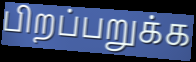
பிறப்பறுக்க